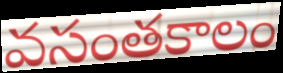
వసంతకాలం